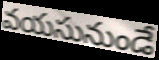
వయసునుండే